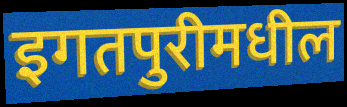
इगतपुरीमधील